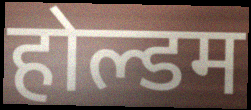
होल्डम